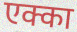
एक्का